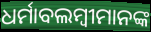
ଧର୍ମାବଲମ୍ବୀମାନଙ୍କ